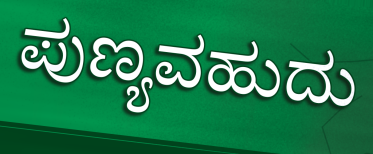
ಪುಣ್ಯವಹುದು